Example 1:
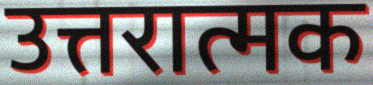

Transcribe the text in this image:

उत्तरात्मक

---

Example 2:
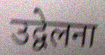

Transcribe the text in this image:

उद्वेलना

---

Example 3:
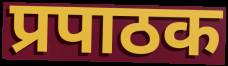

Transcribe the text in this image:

प्रपाठक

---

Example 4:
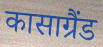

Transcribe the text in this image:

कासाग्रैंड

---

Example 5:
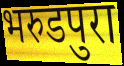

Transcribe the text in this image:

भरुडपुरा